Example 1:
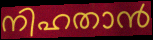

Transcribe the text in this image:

നിഹതാൻ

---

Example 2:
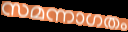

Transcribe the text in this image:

സമന്നാഗതം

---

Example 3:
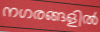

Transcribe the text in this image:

നഗരങ്ങളിൽ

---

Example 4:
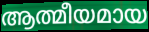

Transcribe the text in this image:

ആത്മീയമായ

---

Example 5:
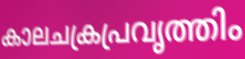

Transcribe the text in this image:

കാലചക്രപ്രവൃത്തിം